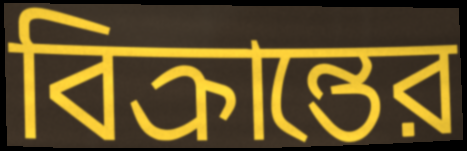
বিক্রান্তের